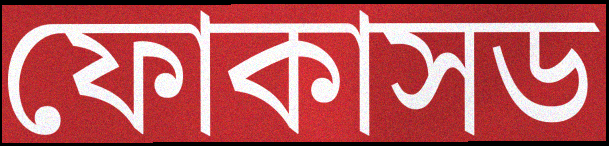
ফোকাসড